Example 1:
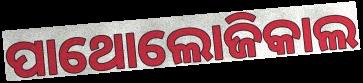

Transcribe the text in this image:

ପାଥୋଲୋଜିକାଲ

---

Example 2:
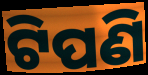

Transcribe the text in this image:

ଟିପଣି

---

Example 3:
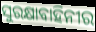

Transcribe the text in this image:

ସୁରକ୍ଷାବାହିନୀର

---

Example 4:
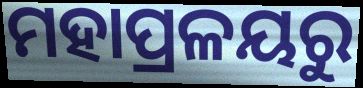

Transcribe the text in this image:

ମହାପ୍ରଳୟରୁ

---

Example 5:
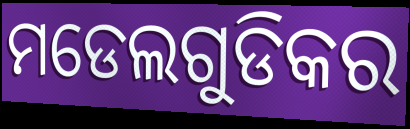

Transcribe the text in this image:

ମଡେଲଗୁଡିକର